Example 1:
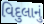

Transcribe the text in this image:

વિદુલાનું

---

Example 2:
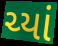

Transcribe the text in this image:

ચ્યાં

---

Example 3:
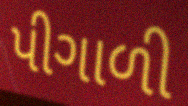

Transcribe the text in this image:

પીગાળી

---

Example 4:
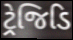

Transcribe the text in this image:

ટ્રેજિડિ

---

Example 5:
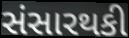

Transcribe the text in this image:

સંસારથકી